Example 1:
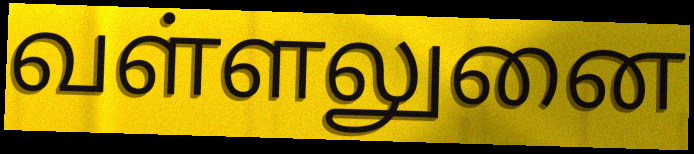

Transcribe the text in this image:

வள்ளலுனை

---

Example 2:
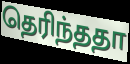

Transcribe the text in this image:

தெரிந்ததா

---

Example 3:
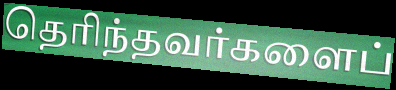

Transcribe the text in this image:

தெரிந்தவர்களைப்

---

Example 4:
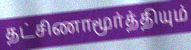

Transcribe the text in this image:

தட்சிணாமூர்த்தியும்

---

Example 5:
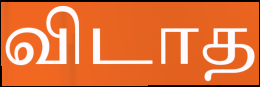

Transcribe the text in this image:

விடாத